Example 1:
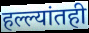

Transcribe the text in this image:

हल्ल्यांतही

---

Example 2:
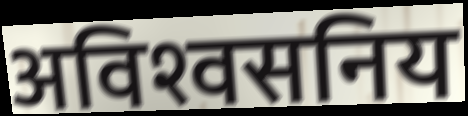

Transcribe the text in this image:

अविश्वसनिय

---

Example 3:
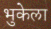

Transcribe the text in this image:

भुकेला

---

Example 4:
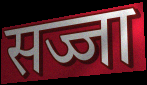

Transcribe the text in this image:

सज्जा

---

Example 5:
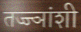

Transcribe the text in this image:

तज्ज्ञांशी